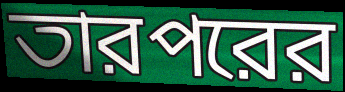
তারপরের